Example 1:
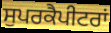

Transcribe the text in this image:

ਸੁਪਰਕੈਪੀਟਰਾਂ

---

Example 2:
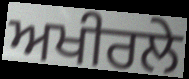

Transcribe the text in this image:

ਅਖੀਰਲੇ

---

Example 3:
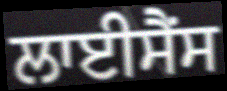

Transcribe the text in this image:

ਲਾਈਸੈਂਸ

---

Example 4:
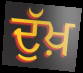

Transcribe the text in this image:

ਦੁੱਖ਼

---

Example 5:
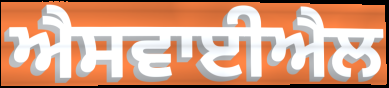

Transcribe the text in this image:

ਐਸਵਾਈਐਲ